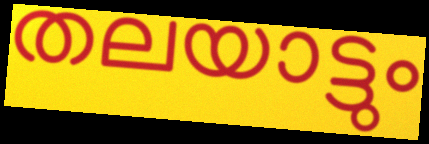
തലയാട്ടും